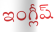
ఇంగ్లీష్